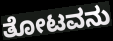
ತೋಟವನು